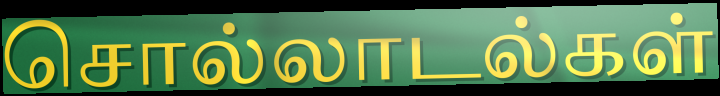
சொல்லாடல்கள்